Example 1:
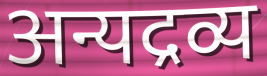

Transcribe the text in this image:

अन्यद्रव्य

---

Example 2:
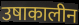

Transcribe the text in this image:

उषाकालीन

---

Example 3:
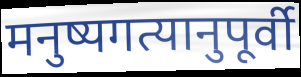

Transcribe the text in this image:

मनुष्यगत्यानुपूर्वी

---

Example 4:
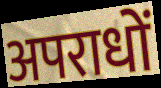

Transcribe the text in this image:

अपराधों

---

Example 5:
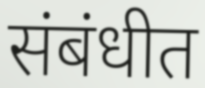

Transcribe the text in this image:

संबंधीत